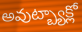
అవుట్బ్యాక్లో